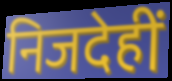
निजदेहीं